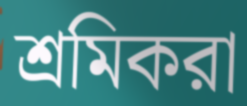
শ্রমিকরা